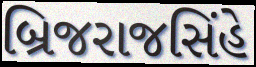
બ્રિજરાજસિંહે